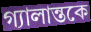
গ্যালান্তকে